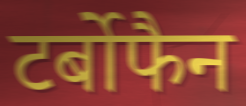
टर्बोफैन